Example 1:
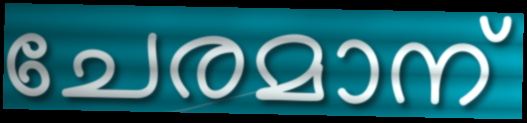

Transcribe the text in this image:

ചേരമാന്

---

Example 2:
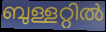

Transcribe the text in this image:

ബുള്ളറ്റിൽ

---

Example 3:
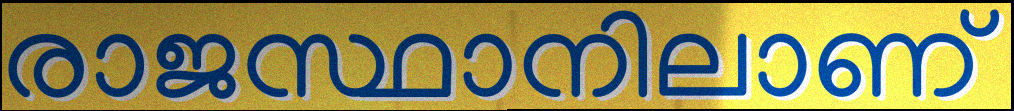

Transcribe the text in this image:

രാജസ്ഥാനിലാണ്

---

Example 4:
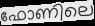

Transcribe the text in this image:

ഫോണിലെ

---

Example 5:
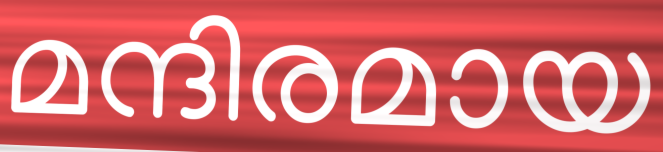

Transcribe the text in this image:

മന്ദിരമായ